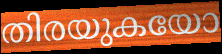
തിരയുകയോ